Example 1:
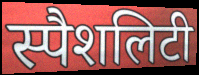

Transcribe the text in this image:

स्पैशलिटी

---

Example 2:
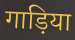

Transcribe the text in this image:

गाड़िया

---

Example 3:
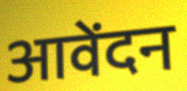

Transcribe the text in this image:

आवेंदन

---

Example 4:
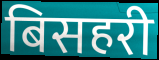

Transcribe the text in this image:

बिसहरी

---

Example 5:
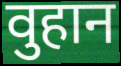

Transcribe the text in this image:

वुहान